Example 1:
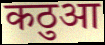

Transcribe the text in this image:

कठुआ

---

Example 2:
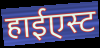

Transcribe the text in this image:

हाईएस्ट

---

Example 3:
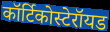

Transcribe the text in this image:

कॉर्टिकोस्टेरॉयड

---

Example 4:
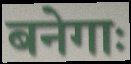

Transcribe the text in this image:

बनेगाः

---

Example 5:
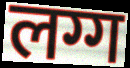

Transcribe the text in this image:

लग्ग